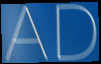
AD